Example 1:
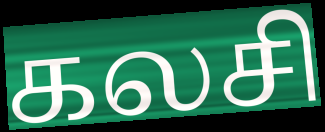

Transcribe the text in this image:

கலசி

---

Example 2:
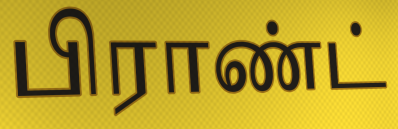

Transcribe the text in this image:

பிராண்ட்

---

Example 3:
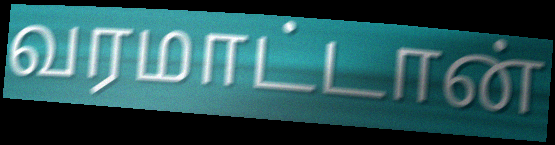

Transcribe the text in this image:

வரமாட்டான்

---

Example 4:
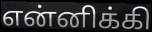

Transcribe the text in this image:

என்னிக்கி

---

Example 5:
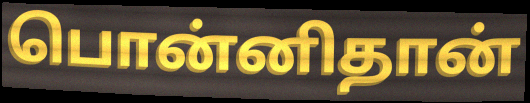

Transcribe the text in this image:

பொன்னிதான்